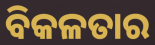
ବିକଳତାର